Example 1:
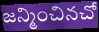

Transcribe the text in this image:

జన్మించినచో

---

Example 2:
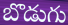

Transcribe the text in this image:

బొడుగు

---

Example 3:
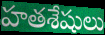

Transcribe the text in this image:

హతశేషులు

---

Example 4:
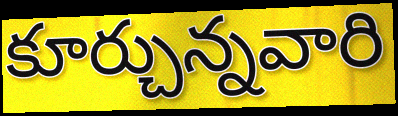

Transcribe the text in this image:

కూర్చున్నవారి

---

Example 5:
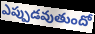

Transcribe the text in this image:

ఎప్పుడవుతుందో